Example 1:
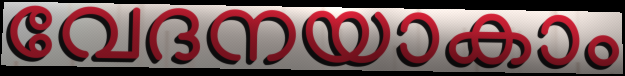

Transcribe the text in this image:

വേദനയാകാം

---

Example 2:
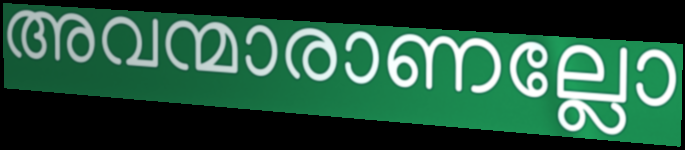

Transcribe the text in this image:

അവന്മാരാണല്ലോ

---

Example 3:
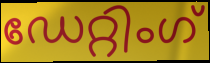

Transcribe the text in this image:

ഡേറ്റിംഗ്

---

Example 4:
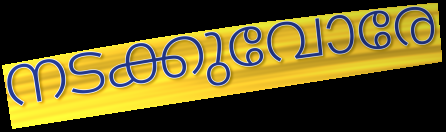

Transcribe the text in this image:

നടക്കുവോരേ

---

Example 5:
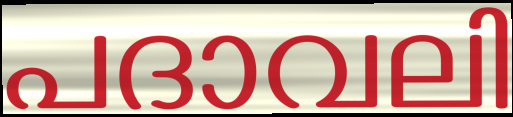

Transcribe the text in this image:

പദാവലി